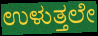
ಉಳುತ್ತಲೇ